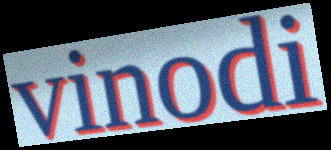
vinodi